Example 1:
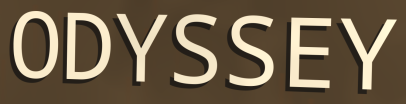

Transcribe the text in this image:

ODYSSEY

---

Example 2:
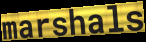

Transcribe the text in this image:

marshals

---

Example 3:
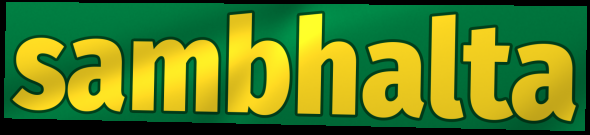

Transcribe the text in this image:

sambhalta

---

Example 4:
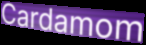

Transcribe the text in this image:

Cardamom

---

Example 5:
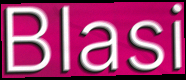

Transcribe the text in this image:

Blasi